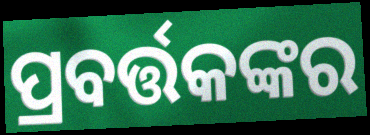
ପ୍ରବର୍ତ୍ତକଙ୍କର